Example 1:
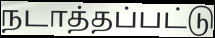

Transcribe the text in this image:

நடாத்தப்பட்டு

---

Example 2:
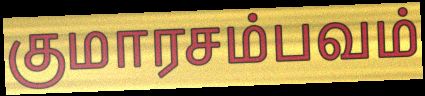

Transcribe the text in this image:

குமாரசம்பவம்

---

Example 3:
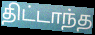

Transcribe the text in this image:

திட்டாந்த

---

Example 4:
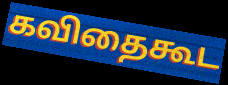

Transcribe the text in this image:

கவிதைகூட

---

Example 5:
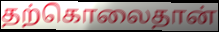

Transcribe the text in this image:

தற்கொலைதான்